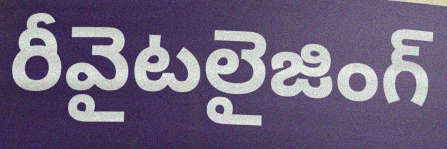
రీవైటలైజింగ్